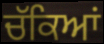
ਚੱਕਿਆਂ